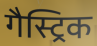
गैस्ट्रिक